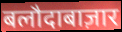
बलौदाबाज़ार